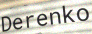
Derenko